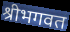
श्रीभगवत